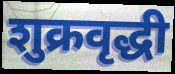
शुक्रवृद्धी